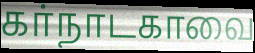
கர்நாடகாவை